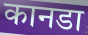
कानडा